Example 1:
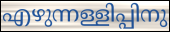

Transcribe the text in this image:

എഴുന്നള്ളിപ്പിനു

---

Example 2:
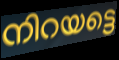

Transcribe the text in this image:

നിറയട്ടെ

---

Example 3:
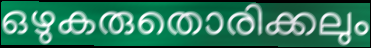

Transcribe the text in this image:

ഒഴുകരുതൊരിക്കലും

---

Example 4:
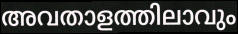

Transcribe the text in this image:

അവതാളത്തിലാവും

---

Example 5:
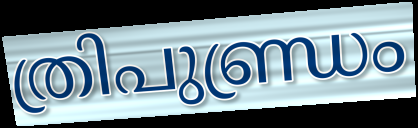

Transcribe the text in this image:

ത്രിപുണ്ഡ്രം